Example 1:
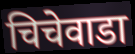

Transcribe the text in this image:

चिचेवाडा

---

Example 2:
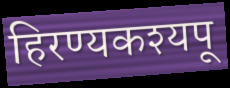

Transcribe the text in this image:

हिरण्यकश्यपू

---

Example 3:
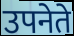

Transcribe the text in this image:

उपनेते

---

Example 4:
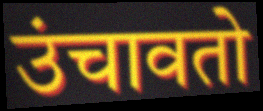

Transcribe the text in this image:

उंचावतो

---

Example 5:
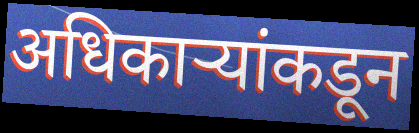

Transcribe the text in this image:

अधिकाऱ्यांकडून